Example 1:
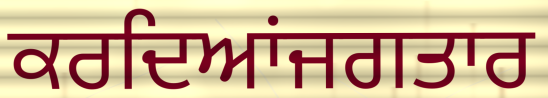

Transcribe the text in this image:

ਕਰਦਿਆਂਜਗਤਾਰ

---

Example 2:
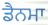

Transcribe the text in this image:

ਡੈਨਮਾ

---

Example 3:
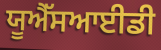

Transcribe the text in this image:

ਯੂਐੱਸਆਈਡੀ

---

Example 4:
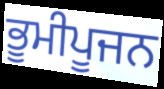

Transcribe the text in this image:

ਭੂਮੀਪੂਜਨ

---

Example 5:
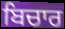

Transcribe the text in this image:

ਬਿਚਾਰ